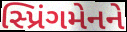
સ્પ્રિંગમેનને